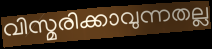
വിസ്മരിക്കാവുന്നതല്ല